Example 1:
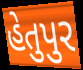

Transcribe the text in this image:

હેતુપુર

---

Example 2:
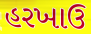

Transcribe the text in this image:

હરખાઉ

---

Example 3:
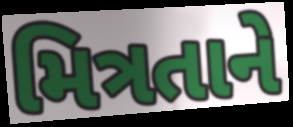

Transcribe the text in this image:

મિત્રતાને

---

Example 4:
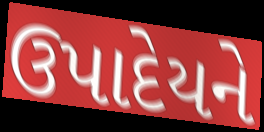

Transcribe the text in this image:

ઉપાદેયને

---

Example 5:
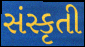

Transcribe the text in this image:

સંસ્કૃતી